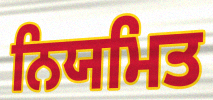
ਨਿਯਮਿਤ